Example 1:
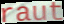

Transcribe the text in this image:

raut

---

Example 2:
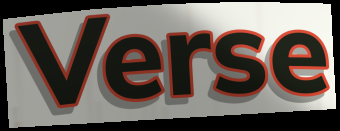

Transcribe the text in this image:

Verse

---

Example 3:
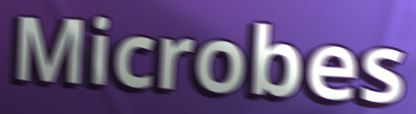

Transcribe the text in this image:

Microbes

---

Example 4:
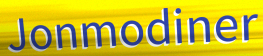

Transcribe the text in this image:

Jonmodiner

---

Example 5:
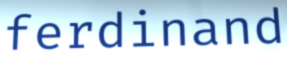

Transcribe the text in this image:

ferdinand